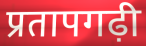
प्रतापगढ़ी